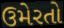
ઉમેરતો